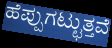
ಹೆಪ್ಪುಗಟ್ಟುತ್ತವೆ